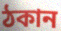
ঠকান